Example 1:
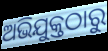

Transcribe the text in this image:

ଅଭିଯୁକ୍ତଠାରୁ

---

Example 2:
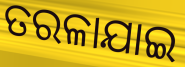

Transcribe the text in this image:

ତରଳାଯାଇ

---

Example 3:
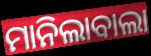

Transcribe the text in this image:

ମାନିଲାବାଲା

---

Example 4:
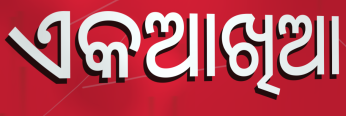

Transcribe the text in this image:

ଏକଆଖିଆ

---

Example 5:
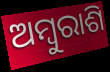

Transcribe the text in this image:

ଅମ୍ୱୁରାଶି